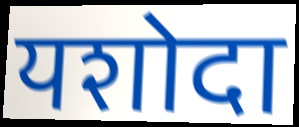
यशोदा